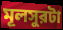
মূলসুরটা